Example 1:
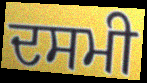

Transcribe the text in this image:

ਦਸਮੀ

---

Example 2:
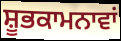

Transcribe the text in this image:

ਸ਼ੂਭਕਾਮਨਾਵਾਂ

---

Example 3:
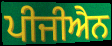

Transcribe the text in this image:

ਪੀਜੀਐਨ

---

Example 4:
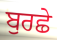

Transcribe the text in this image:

ਬੁਰਛੇ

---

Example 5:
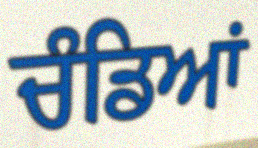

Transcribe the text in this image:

ਚੰਡਿਆਂ